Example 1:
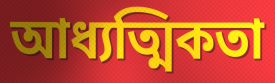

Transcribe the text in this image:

আধ্যত্মিকতা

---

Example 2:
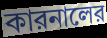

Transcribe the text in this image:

কারনালের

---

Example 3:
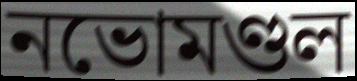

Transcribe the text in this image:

নভোমণ্ডল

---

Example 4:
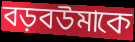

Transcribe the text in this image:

বড়বউমাকে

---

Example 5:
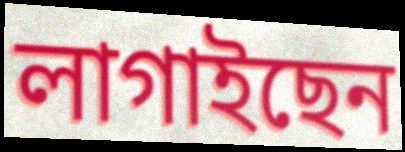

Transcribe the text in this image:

লাগাইছেন